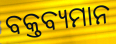
ବକ୍ତବ୍ୟମାନ